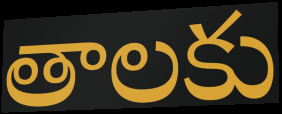
తాలకు